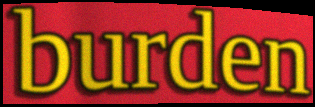
burden